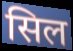
सिल